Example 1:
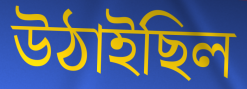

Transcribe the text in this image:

উঠাইছিল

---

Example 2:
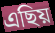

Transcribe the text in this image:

এছিয়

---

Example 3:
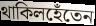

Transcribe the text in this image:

থাকিলহেঁতেন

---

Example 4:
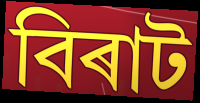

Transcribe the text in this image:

বিৰাট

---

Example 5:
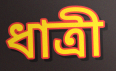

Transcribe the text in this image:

ধাত্ৰী